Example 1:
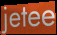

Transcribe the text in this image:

jetee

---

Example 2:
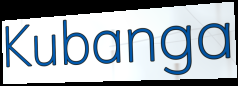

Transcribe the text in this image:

Kubanga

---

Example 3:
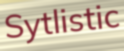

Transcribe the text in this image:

Sytlistic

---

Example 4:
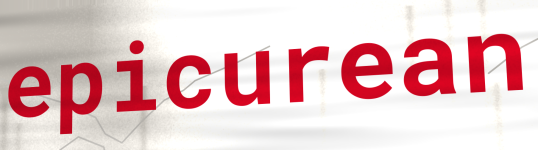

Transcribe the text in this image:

epicurean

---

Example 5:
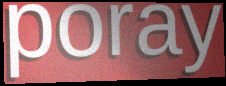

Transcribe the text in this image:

poray